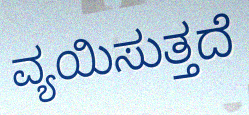
ವ್ಯಯಿಸುತ್ತದೆ